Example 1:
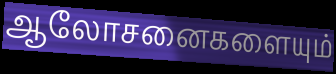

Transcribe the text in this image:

ஆலோசனைகளையும்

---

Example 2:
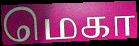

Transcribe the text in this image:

மெகா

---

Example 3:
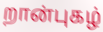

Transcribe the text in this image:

றான்புகழ்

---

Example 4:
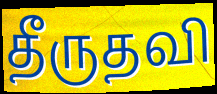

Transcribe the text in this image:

தீருதவி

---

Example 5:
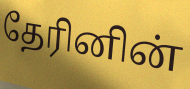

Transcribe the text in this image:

தேரினின்